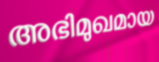
അഭിമുഖമായ